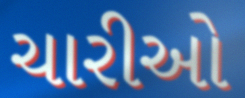
ચારીઓ